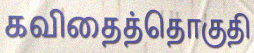
கவிதைத்தொகுதி